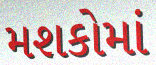
મશકોમાં